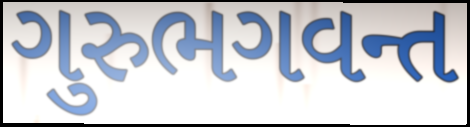
ગુરુભગવન્ત